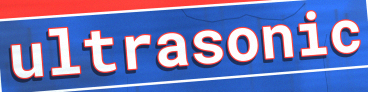
ultrasonic